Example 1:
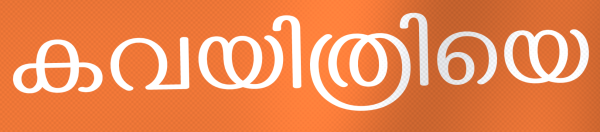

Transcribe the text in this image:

കവയിത്രിയെ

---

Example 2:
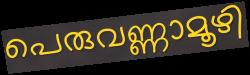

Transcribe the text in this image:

പെരുവണ്ണാമൂഴി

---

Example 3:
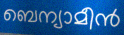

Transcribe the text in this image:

ബെന്യാമീൻ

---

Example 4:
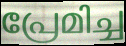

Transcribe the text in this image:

പ്രേമിച്ച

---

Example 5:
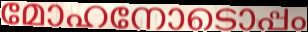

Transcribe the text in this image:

മോഹനോടൊപ്പം